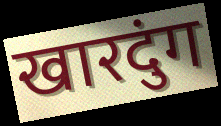
खारदुंग